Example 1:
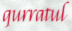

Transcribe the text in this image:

qurratul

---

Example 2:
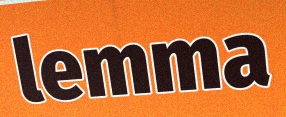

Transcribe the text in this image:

lemma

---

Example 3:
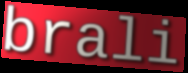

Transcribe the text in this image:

brali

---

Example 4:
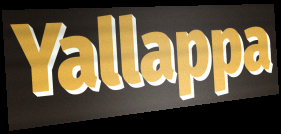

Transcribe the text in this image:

Yallappa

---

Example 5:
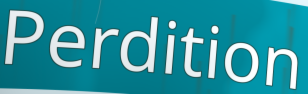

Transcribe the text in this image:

Perdition